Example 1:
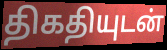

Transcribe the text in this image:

திகதியுடன்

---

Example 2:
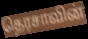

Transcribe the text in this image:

தெரசாவின்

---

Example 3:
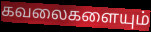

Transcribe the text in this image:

கவலைகளையும்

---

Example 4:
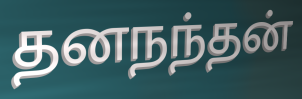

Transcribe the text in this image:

தனநந்தன்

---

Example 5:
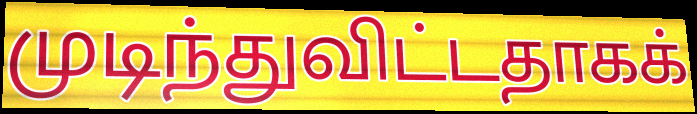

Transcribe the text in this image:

முடிந்துவிட்டதாகக்